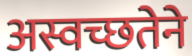
अस्वच्छतेने